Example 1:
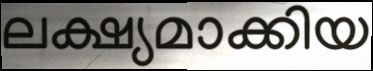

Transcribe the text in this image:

ലക്ഷ്യമാക്കിയ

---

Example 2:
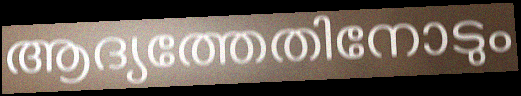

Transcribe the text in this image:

ആദ്യത്തേതിനോടും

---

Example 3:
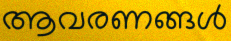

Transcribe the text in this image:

ആവരണങ്ങൾ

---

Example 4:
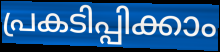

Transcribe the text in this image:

പ്രകടിപ്പിക്കാം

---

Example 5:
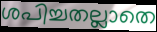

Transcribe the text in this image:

ശപിച്ചതല്ലാതെ